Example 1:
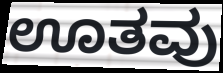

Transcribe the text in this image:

ಊತವು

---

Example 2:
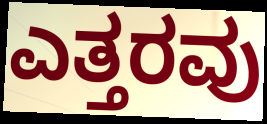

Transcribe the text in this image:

ಎತ್ತರವು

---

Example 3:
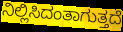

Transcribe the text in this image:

ನಿಲ್ಲಿಸಿದಂತಾಗುತ್ತದೆ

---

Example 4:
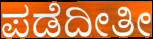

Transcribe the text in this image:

ಪಡೆದೀತೀ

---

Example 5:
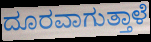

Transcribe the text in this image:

ದೂರವಾಗುತ್ತಾಳೆ